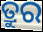
ତ୍ରୁର